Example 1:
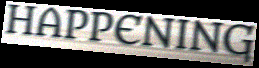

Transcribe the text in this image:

HAPPENING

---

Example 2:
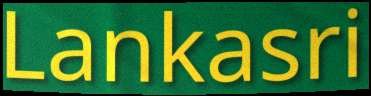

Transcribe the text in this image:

Lankasri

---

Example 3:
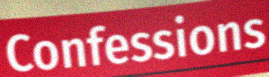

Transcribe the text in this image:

Confessions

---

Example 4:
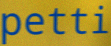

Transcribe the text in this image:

petti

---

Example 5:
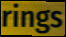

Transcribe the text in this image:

rings